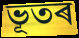
ভূতৰ